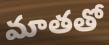
మాతతో